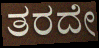
ತರದೇ